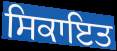
ਸਿਕਾਇਤ